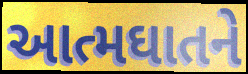
આત્મઘાતને